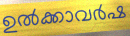
ഉൽക്കാവർഷ